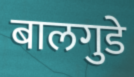
बालगुडे